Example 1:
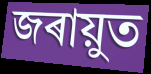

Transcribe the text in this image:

জৰায়ুত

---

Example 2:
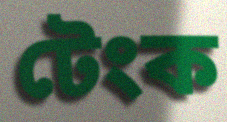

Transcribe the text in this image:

টেংক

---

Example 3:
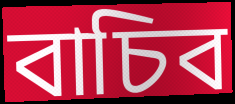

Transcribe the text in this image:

বাচিব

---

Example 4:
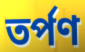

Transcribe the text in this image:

তৰ্পণ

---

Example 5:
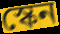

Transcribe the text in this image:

স্কেন